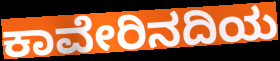
ಕಾವೇರಿನದಿಯ